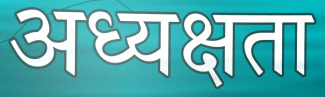
अध्यक्षता